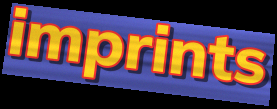
imprints